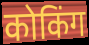
कोकिंग